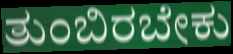
ತುಂಬಿರಬೇಕು